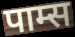
पाम्स